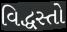
વિદ્ધસ્તો